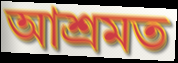
আশ্ৰমত